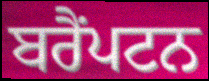
ਬਰੈਂਪਟਨ